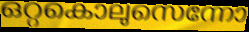
ഒറ്റകൊലുസെന്നോ